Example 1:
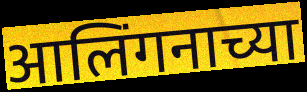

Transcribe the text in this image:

आलिंगनाच्या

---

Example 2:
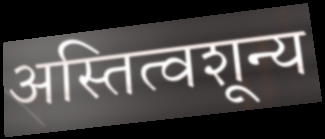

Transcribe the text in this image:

अस्तित्वशून्य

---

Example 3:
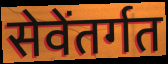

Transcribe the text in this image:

सेवेंतर्गत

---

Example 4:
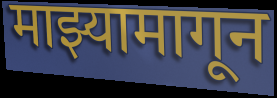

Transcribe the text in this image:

माझ्यामागून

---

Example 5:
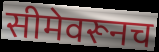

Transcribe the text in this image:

सीमेवरूनच